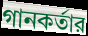
গানকর্তার